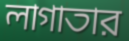
লাগাতার